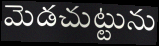
మెడచుట్టును